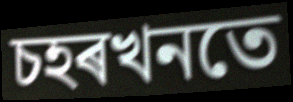
চহৰখনতে